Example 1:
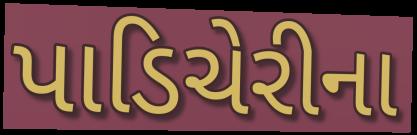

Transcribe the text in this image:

પાડિચેરીના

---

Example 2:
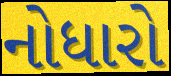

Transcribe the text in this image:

નોધારો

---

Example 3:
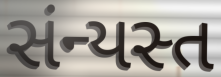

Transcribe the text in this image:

સંન્યસ્ત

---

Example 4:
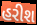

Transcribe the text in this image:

હરીશ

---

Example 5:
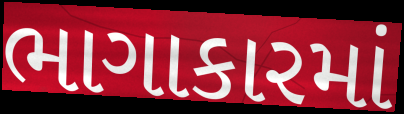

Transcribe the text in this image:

ભાગાકારમાં